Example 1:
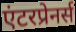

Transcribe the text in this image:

एंटरप्रेनर्स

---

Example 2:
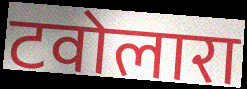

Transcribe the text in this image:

टवोलारा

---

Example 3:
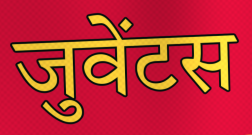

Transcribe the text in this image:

जुवेंटस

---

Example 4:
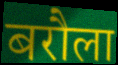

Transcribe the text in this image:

बरौला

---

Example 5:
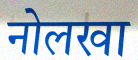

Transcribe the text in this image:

नोलखा